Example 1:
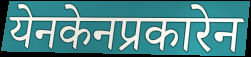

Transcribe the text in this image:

येनकेनप्रकारेन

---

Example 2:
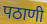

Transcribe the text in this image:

पठाणी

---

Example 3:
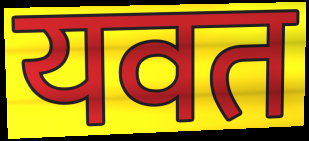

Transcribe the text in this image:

यवत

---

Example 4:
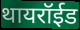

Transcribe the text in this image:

थायरॉईड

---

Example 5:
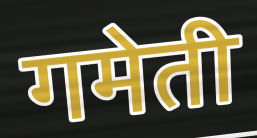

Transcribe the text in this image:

गमेती